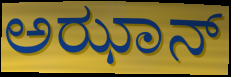
ಅಝಾನ್